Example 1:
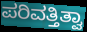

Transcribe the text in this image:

ಪರಿವತ್ತಿತ್ವಾ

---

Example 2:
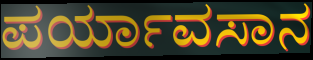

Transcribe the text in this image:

ಪರ್ಯಾವಸಾನ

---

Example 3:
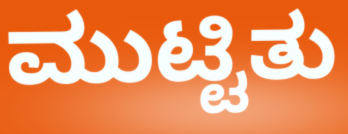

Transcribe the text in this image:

ಮುಟ್ಟಿತು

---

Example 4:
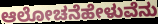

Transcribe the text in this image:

ಆಲೋಚನೆಹೇಳುವೆನು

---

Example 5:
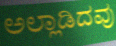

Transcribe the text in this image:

ಅಲ್ಲಾಡಿದವು